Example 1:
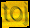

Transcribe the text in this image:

toj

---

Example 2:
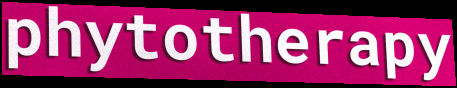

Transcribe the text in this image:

phytotherapy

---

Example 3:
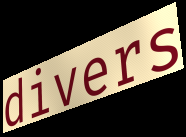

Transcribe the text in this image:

divers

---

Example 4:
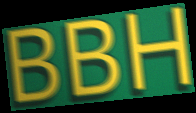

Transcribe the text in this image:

BBH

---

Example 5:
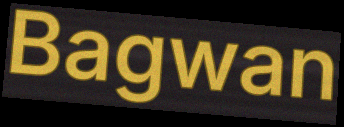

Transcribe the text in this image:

Bagwan